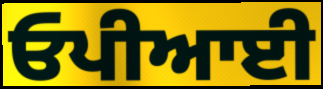
ਓਪੀਆਈ